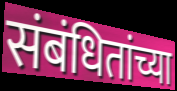
संबंधितांच्या